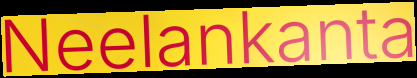
Neelankanta